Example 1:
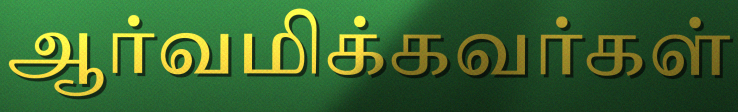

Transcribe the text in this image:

ஆர்வமிக்கவர்கள்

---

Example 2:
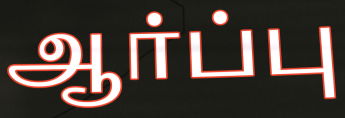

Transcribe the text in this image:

ஆர்ப்பு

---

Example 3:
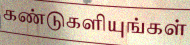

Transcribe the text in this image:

கண்டுகளியுங்கள்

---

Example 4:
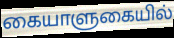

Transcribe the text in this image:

கையாளுகையில்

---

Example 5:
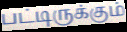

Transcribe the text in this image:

பட்டிருக்கும்